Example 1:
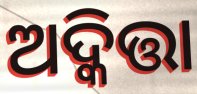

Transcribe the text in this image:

ଅଦ୍କିତ୍ତା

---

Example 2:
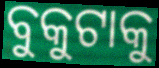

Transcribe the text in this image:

ବୁକୁଟାକୁ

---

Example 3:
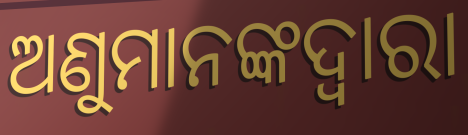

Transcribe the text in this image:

ଅଣୁମାନଙ୍କଦ୍ଵାରା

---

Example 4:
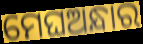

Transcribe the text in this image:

ମେଘଅନ୍ଧାର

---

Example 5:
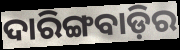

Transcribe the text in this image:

ଦାରିଙ୍ଗବାଡ଼ିର